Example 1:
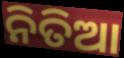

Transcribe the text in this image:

ନିତିଆ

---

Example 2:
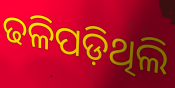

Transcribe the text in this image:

ଢଳିପଡ଼ିଥିଲି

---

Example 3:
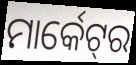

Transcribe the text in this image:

ମାର୍କେଟ୍‌ର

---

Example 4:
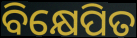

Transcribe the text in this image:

ବିକ୍ଷେପିତ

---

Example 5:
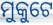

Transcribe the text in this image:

ମୁକୁଟେ